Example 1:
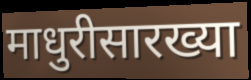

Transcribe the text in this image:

माधुरीसारख्या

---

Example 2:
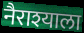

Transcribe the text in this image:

नैराश्याला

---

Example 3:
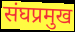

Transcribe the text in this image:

संघप्रमुख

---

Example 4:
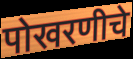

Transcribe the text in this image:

पोखरणीचे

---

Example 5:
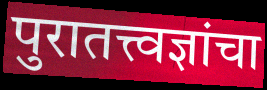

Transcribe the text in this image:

पुरातत्त्वज्ञांचा